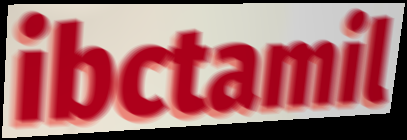
ibctamil